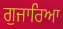
ਗੁਜਾਰਿਆ